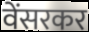
वेंसरकर